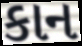
કાન